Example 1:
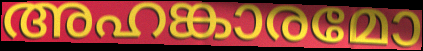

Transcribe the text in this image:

അഹങ്കാരമോ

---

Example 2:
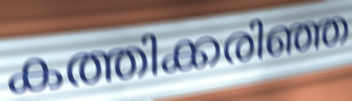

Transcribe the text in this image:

കത്തിക്കരിഞ്ഞ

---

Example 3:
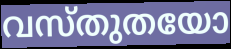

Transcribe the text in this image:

വസ്തുതയോ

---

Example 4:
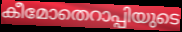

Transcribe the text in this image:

കീമോതെറാപ്പിയുടെ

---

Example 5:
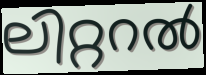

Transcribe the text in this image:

ലിറ്ററൽ